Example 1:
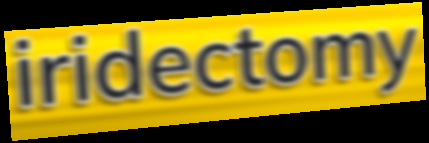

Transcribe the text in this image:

iridectomy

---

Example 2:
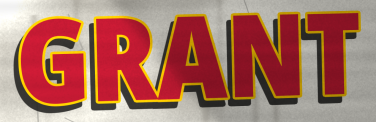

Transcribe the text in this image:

GRANT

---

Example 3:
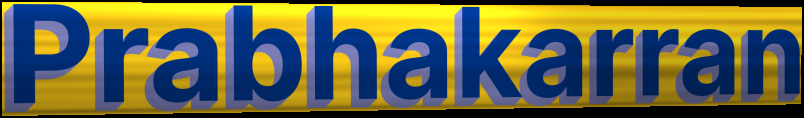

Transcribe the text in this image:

Prabhakarran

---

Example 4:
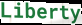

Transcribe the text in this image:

Liberty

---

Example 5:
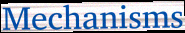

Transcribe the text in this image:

Mechanisms